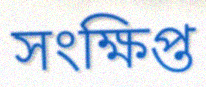
সংক্ষিপ্ত